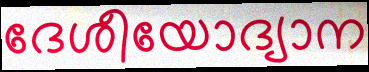
ദേശീയോദ്യാന